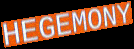
HEGEMONY